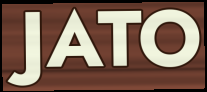
JATO